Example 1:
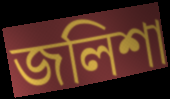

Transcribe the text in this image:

জলিশা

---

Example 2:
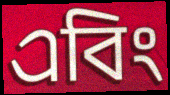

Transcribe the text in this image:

এবিং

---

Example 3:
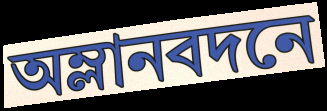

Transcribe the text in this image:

অম্লানবদনে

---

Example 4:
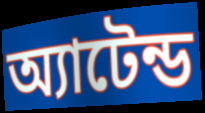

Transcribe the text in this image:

অ্যাটেন্ড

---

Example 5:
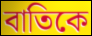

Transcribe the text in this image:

বাতিকে